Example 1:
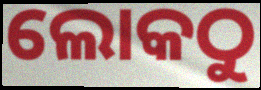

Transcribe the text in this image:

ଲୋକଠୁ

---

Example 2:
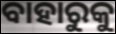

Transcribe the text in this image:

ବାହାରୁକୁ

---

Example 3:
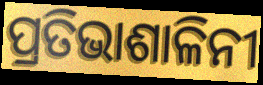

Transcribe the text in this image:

ପ୍ରତିଭାଶାଳିନୀ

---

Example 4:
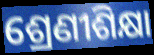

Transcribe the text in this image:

ଶ୍ରେଣୀଶିକ୍ଷା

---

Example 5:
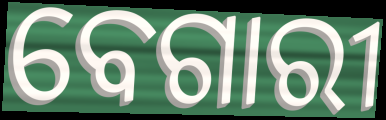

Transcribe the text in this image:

ବେଗାରୀ